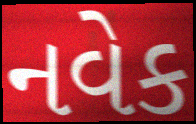
નવેક